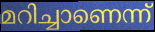
മറിച്ചാണെന്ന്